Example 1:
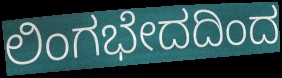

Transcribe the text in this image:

ಲಿಂಗಭೇದದಿಂದ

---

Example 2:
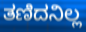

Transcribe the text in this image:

ತಣಿದನಿಲ್ಲ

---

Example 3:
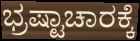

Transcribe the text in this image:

ಭ್ರಷ್ಟಾಚಾರಕ್ಕೆ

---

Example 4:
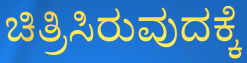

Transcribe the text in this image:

ಚಿತ್ರಿಸಿರುವುದಕ್ಕೆ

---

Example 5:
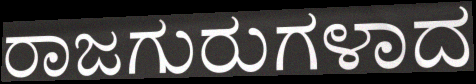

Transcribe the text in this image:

ರಾಜಗುರುಗಳಾದ